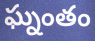
ఘ్నంతం